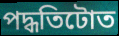
পদ্ধতিটোত